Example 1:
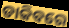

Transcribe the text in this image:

ଡାକିବରେ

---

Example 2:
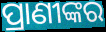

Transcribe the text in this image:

ପ୍ରାଣୀଙ୍କର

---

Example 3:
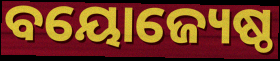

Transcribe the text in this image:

ବୟୋଜ୍ୟେଷ୍ଠ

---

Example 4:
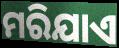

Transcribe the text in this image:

ମରିଯାଏ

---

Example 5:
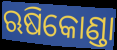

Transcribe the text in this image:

ଋଷିକୋଣ୍ଡା